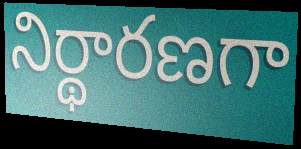
నిర్థారణగా